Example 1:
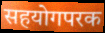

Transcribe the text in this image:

सहयोगपरक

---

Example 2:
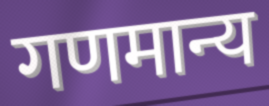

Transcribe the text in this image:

गणमान्‍य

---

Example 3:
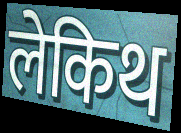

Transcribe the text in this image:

लेकिथ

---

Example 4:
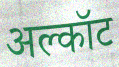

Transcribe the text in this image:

अल्कॉट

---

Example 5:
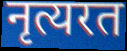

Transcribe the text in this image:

नृत्यरत